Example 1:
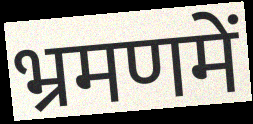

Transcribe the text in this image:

भ्रमणमें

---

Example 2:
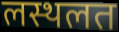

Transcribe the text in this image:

लस्थलत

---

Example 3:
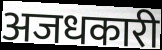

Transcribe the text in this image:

अजधकारी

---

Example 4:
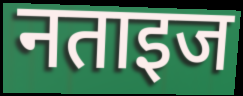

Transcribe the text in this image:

नताइज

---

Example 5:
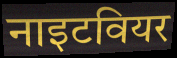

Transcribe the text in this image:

नाइटवियर